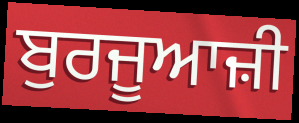
ਬੁਰਜੂਆਜ਼ੀ